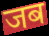
जब